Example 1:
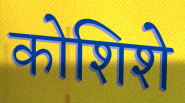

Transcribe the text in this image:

कोशिशे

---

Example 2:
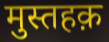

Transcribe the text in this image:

मुस्तहक़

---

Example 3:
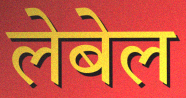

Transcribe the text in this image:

लेबेल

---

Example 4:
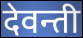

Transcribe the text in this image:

देवन्ती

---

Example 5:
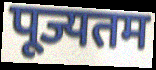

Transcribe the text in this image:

पूज्यतम